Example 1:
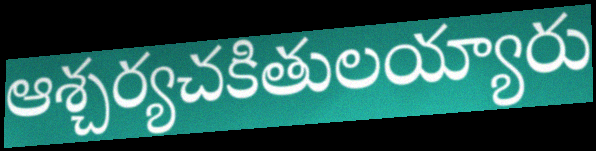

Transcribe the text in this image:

ఆశ్చర్యచకితులయ్యారు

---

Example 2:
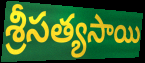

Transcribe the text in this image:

శ్రీసత్యసాయి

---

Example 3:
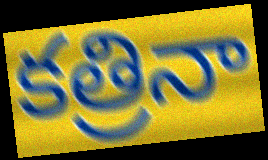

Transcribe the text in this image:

కత్రినా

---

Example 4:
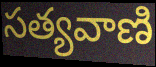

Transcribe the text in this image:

సత్యవాణి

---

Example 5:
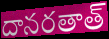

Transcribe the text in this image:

దానరతాత్